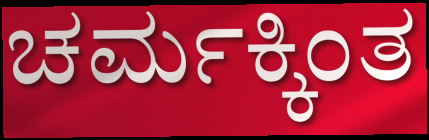
ಚರ್ಮಕ್ಕಿಂತ